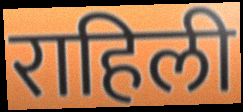
राहिली